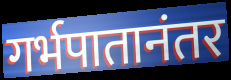
गर्भपातानंतर